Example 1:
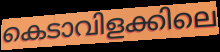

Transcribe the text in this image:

കെടാവിളക്കിലെ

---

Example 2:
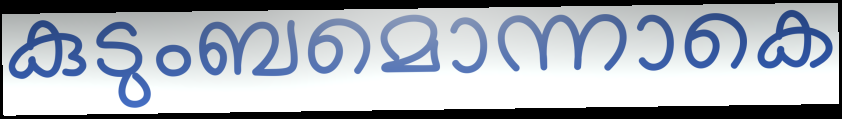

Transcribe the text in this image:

കുടുംബമൊന്നാകെ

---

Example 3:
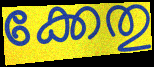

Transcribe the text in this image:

ക്കേതു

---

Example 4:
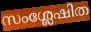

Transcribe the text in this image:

സംശ്ലേഷിത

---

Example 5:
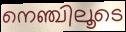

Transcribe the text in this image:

നെഞ്ചിലൂടെ